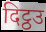
दिट्ठउ